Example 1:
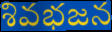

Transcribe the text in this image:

శివభజన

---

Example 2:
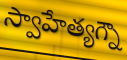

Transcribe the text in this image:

స్వాహేత్యగ్నౌ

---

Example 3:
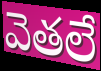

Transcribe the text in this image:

వెతలే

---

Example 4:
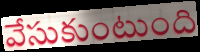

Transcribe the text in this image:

వేసుకుంటుంది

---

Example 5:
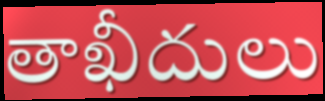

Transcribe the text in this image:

తాఖీదులు